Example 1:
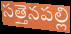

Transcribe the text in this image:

సత్తెనపల్లి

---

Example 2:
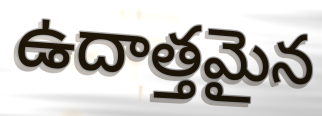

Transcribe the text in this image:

ఉదాత్తమైన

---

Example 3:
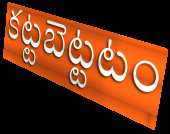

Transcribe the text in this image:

కట్టబెట్టటం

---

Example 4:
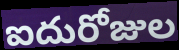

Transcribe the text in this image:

ఐదురోజుల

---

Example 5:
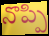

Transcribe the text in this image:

నొప్పి